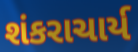
શંકરાચાર્ય